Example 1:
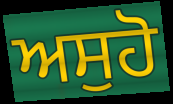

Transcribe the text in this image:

ਅਸੁਹੋ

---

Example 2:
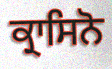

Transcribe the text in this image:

ਕ੍ਰਾਸਿਨੋ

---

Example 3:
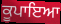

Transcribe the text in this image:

ਕੂਪਾਇਆ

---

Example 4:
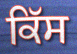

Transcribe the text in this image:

ਕਿੱਸ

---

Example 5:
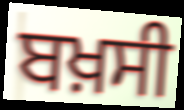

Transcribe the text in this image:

ਬਖ਼ਸੀ